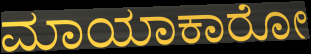
ಮಾಯಾಕಾರೋ